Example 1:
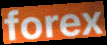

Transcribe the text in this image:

forex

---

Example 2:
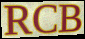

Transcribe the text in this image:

RCB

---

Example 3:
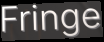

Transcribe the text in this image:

Fringe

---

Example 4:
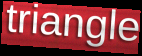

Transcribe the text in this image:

triangle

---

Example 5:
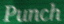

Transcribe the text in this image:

Punch